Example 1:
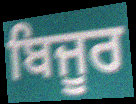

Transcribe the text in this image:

ਬਿਜੂਰ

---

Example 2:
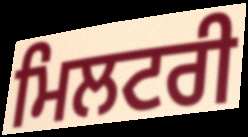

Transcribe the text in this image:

ਮਿਲਟਰੀ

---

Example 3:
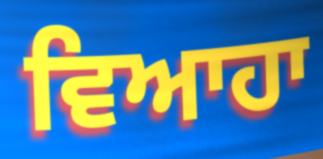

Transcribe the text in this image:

ਵਿਆਹਾ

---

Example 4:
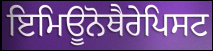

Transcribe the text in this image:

ਇਮਿਊਨੋਥੈਰੇਪਿਸਟ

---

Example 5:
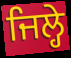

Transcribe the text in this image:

ਜਿਲ੍ਹੇ